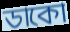
ডাকো